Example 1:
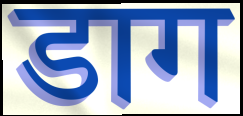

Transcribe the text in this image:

डाग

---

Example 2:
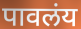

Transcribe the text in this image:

पावलंय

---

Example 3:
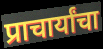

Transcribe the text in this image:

प्राचार्यांचा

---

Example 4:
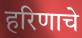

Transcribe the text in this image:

हरिणाचे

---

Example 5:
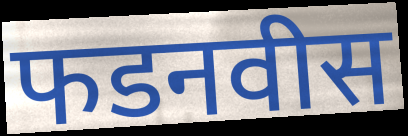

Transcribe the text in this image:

फडनवीस